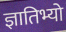
ज्ञातिभ्यो